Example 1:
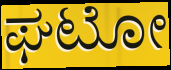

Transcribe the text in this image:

ಘಟೋ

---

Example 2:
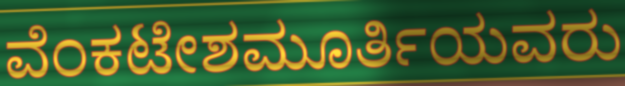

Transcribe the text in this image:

ವೆಂಕಟೇಶಮೂರ್ತಿಯವರು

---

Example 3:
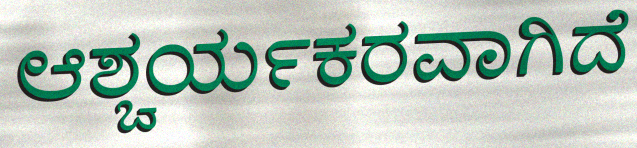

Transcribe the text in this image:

ಆಶ್ಚರ್ಯಕರವಾಗಿದೆ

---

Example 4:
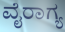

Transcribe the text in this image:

ವೈರಾಗ್ಯ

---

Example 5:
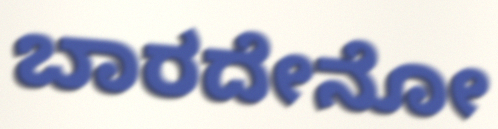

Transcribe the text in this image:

ಬಾರದೇನೋ